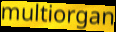
multiorgan